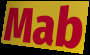
Mab